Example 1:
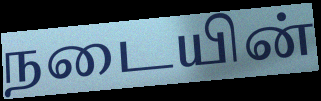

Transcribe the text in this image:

நடையின்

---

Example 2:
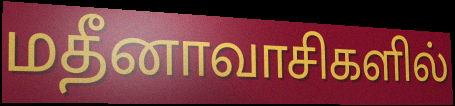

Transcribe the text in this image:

மதீனாவாசிகளில்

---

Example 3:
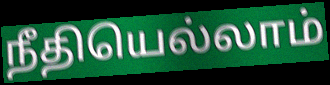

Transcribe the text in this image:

நீதியெல்லாம்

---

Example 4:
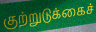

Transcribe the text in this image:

குற்றுடுக்கைச்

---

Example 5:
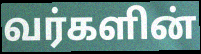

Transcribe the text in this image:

வர்களின்